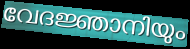
വേദജ്ഞാനിയും